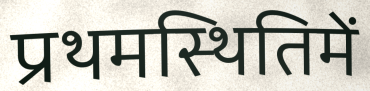
प्रथमस्थितिमें